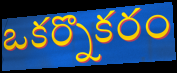
ఒకర్నొకరం